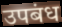
उपबंध